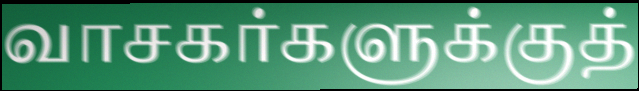
வாசகர்களுக்குத்